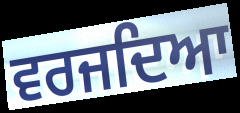
ਵਰਜਦਿਆ